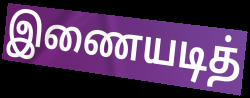
இணையடித்